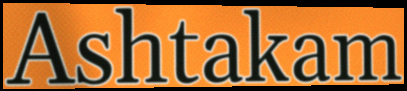
Ashtakam